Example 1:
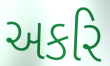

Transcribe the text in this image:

અકરિ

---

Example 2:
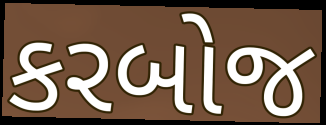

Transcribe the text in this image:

કરબોજ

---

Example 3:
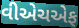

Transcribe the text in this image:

વીએચએફ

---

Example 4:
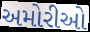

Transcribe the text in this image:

અમોરીઓ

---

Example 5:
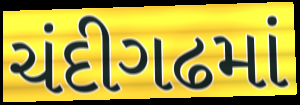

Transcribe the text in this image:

ચંદીગઢમાં